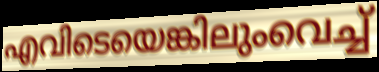
എവിടെയെങ്കിലുംവെച്ച്